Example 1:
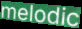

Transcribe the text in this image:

melodic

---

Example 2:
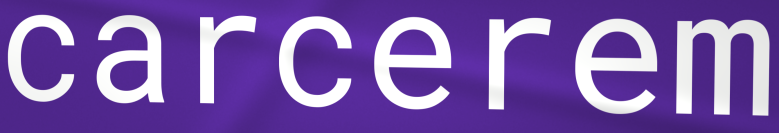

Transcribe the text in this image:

carcerem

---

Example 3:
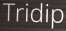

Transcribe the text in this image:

Tridip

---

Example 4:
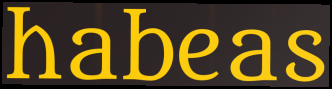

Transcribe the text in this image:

habeas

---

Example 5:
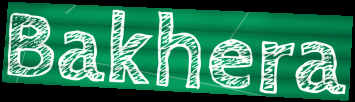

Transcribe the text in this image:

Bakhera